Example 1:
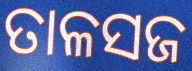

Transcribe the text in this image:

ତାଳସଜ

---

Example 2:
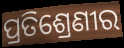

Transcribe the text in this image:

ପ୍ରତିଶ୍ରେଣୀର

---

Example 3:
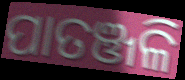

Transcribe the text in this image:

ପାତଞ୍ଜଳି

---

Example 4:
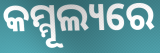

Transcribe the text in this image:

କମ୍ମୂଲ୍ୟରେ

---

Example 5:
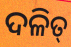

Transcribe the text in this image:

ଦଳିତ୍